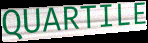
QUARTILE